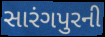
સારંગપુરની